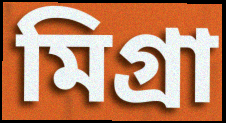
মিগ্রা